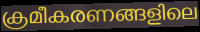
ക്രമീകരണങ്ങളിലെ